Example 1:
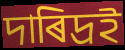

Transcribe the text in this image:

দাৰিদ্ৰই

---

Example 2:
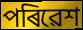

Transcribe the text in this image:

পৰিৱেশ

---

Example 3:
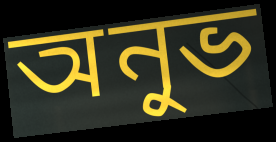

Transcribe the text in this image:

অনুভ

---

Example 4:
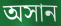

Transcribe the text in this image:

অসান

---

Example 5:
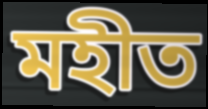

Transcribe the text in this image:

মহীত